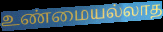
உண்மையல்லாத